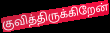
குவித்திருக்கிறேன்